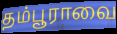
தம்பூராவை